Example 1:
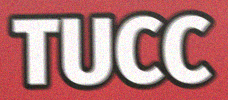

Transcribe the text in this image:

TUCC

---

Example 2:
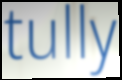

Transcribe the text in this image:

tully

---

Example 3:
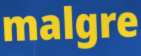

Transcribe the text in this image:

malgre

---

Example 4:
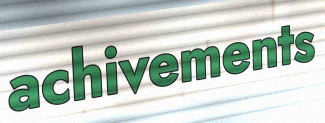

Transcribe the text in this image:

achivements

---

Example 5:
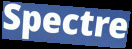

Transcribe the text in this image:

Spectre